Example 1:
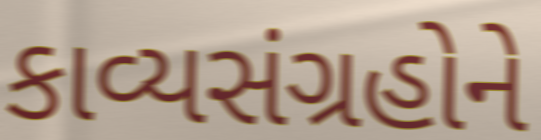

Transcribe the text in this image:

કાવ્યસંગ્રહોને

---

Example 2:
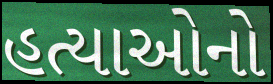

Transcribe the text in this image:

હત્યાઓનો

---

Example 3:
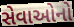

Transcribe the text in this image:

સેવાઓનો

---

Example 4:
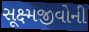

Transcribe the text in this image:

સૂક્ષ્મજીવોની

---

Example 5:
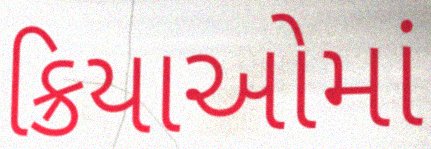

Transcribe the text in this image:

ક્રિયાઓમાં